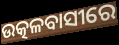
ଉତ୍କଳବାସୀରେ